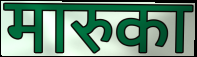
मारुका